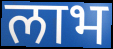
लाभ